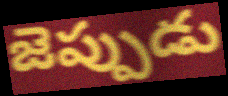
జెప్పుడు